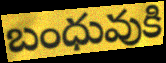
బంధువుకి